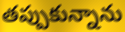
తప్పుకున్నాను